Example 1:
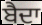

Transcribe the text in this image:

ਬੈਦਾ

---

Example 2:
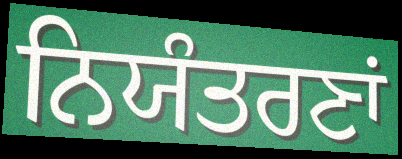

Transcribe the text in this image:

ਨਿਯੰਤਰਣਾਂ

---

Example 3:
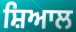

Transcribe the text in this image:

ਸ਼ਿਆਲ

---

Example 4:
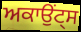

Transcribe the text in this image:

ਅਕਾਉਂਟ੍ਸ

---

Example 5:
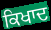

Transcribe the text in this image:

ਕਿਖਾਦ